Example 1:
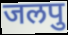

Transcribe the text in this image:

जलपु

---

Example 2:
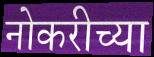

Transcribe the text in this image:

नोकरीच्या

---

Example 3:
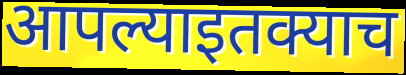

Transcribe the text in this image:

आपल्याइतक्याच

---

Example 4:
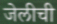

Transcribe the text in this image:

जेलीची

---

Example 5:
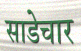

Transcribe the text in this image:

साडेचार